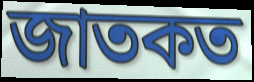
জাতকত